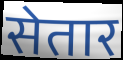
सेतार